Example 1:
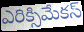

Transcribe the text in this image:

ఎరిక్సిమేకస్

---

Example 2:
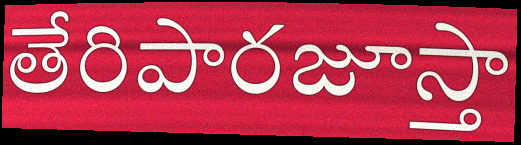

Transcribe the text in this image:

తేరిపారజూస్తా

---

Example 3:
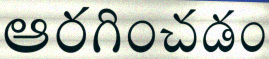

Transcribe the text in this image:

ఆరగించడం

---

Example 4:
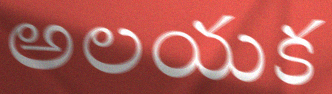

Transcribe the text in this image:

అలయక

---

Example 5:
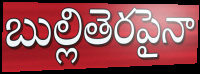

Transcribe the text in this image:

బుల్లితెరపైనా